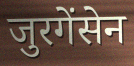
जुरगेंसेन